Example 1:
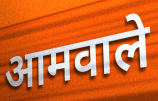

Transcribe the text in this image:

आमवाले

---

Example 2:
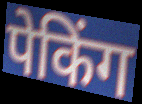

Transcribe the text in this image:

पेकिंग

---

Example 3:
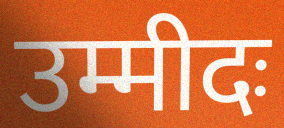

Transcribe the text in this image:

उम्मीदः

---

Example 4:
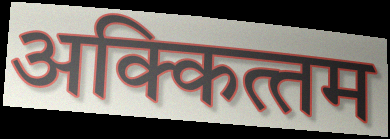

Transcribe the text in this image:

अक्‍कित्‍तम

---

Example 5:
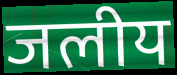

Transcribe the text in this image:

जलीय